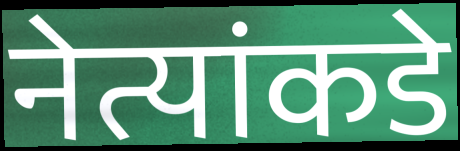
नेत्यांकडे